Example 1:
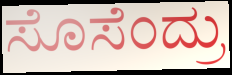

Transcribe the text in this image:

ಸೊಸೆಂದ್ರು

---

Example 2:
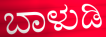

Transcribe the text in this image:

ಬಾಳುಡಿ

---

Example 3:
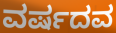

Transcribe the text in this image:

ವರ್ಷದವ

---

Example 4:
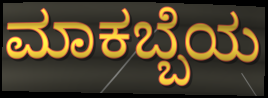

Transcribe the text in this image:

ಮಾಕಬ್ಬೆಯ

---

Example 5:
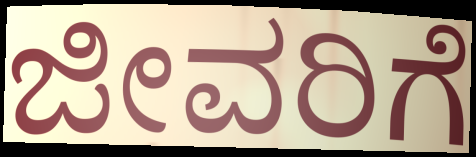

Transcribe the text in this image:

ಜೀವರಿಗೆ